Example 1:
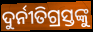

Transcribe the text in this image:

ଦୁର୍ନୀତିଗ୍ରସ୍ତଙ୍କୁ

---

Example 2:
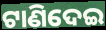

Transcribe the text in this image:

ଟାଣିଦେଇ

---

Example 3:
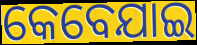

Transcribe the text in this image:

କେବେଯାଇ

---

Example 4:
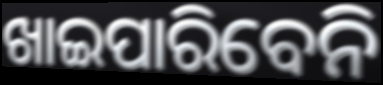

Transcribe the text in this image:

ଖାଇପାରିବେନି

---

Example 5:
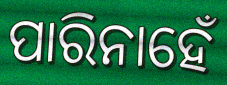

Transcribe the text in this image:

ପାରିନାହେଁ